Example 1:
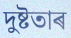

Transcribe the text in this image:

দুষ্টতাৰ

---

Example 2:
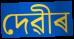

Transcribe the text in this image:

দেৱীৰ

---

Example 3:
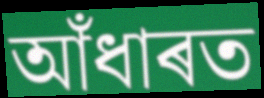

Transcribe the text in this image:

আঁধাৰত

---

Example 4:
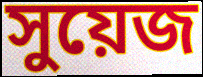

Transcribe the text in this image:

সুয়েজ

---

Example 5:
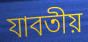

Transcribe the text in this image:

যাবতীয়